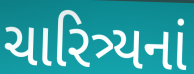
ચારિત્ર્યનાં